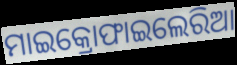
ମାଇକ୍ରୋଫାଇଲେରିଆ